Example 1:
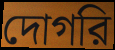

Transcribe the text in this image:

দোগরি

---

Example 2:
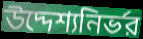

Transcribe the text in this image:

উদ্দেশ্যনির্ভর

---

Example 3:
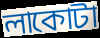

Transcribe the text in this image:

লাকোটা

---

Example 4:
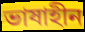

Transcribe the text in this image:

ভাষাহীন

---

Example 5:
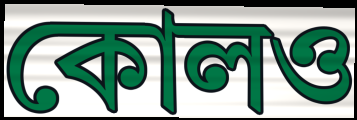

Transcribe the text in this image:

কোলও